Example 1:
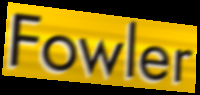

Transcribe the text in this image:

Fowler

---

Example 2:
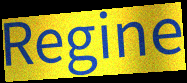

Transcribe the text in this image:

Regine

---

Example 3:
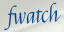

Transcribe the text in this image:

fwatch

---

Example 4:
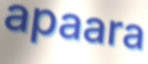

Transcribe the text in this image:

apaara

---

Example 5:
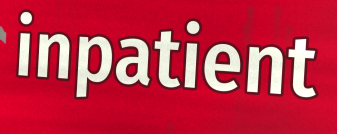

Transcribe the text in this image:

inpatient